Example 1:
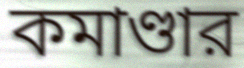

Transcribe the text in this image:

কমাণ্ডার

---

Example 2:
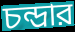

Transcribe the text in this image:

চন্দ্রার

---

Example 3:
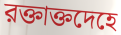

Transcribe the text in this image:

রক্তাক্তদেহে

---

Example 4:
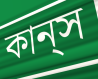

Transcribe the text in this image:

কান্‌স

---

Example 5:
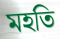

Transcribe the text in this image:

মহতি